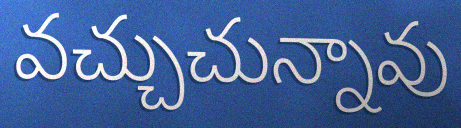
వచ్చుచున్నావు